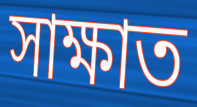
সাক্ষাত